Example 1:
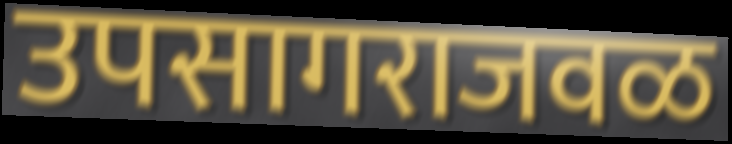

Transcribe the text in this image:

उपसागराजवळ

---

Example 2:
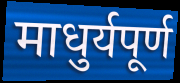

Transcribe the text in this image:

माधुर्यपूर्ण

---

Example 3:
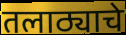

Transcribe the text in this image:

तलाठ्याचे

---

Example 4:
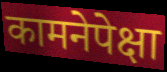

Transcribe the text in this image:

कामनेपेक्षा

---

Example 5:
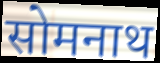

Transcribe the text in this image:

सोमनाथ